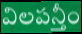
విలపన్తీం